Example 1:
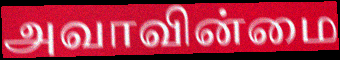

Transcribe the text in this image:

அவாவின்மை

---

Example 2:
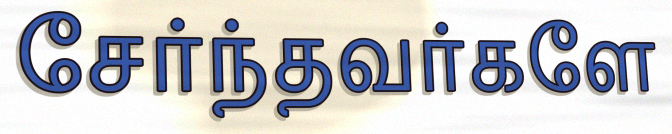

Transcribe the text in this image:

சேர்ந்தவர்களே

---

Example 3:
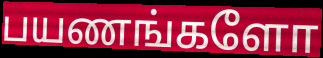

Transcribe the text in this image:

பயணங்களோ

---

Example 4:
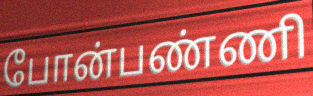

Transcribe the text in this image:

போன்பண்ணி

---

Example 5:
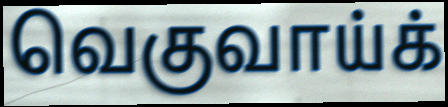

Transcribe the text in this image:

வெகுவாய்க்